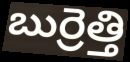
బుర్రెత్తి